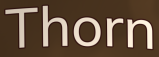
Thorn